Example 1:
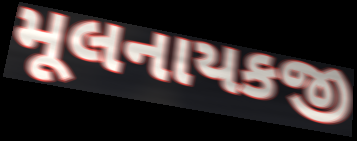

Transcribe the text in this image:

મૂલનાયકજી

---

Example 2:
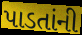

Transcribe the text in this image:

પાડતાંની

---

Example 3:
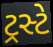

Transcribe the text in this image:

ટ્રસ્ટે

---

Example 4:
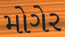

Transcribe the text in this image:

મોગેર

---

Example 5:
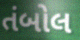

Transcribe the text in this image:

તંબોલ